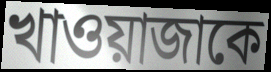
খাওয়াজাকে